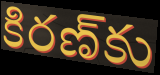
కిరణ్‌కు